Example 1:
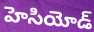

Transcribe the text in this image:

హెసియోడ్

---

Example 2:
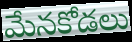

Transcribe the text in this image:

మేనకోడలు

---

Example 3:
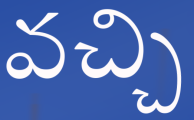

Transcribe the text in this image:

వచ్చి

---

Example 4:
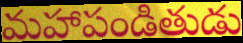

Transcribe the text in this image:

మహాపండితుడు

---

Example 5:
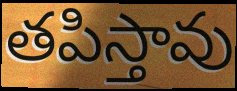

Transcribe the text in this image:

తపిస్తావు